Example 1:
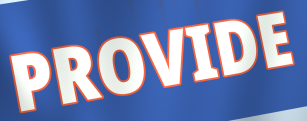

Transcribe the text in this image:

PROVIDE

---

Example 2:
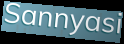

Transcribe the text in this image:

Sannyasi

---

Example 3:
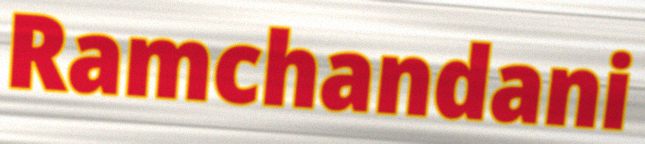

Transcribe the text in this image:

Ramchandani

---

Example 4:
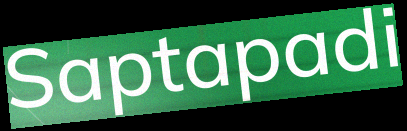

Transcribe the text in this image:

Saptapadi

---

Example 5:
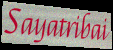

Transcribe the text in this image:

Sayatribai